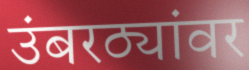
उंबरठ्यांवर